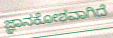
ಜ್ಞಾನಕೋಶವಾಗಿದೆ